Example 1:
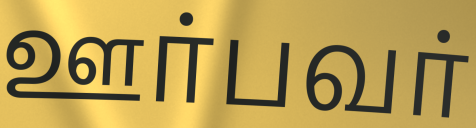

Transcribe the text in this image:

ஊர்பவர்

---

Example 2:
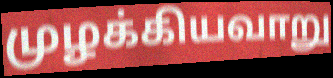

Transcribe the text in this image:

முழக்கியவாறு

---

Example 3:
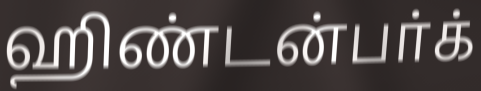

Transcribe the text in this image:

ஹிண்டன்பர்க்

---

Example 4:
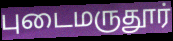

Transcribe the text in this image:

புடைமருதூர்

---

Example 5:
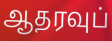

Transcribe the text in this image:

ஆதரவுப்